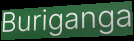
Buriganga